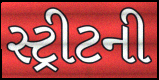
સ્ટ્રીટની